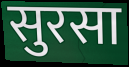
सुरसा